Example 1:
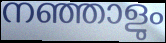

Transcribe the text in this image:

നഞ്ഞാളും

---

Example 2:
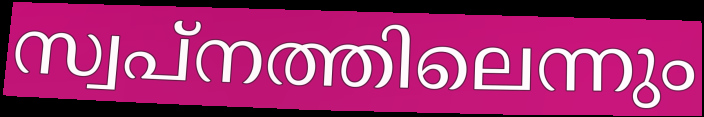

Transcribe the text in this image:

സ്വപ്നത്തിലെന്നും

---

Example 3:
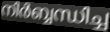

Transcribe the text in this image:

നിർബ്ബന്ധിച്ച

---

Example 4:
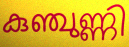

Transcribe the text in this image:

കുഞ്ചുണ്ണി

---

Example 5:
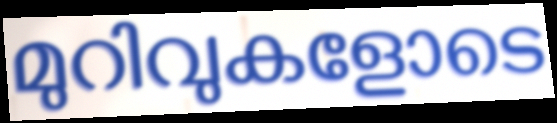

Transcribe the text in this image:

മുറിവുകളോടെ